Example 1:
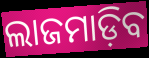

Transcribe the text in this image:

ଲାଜମାଡ଼ିବ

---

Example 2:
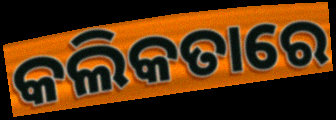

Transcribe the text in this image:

କଲିକତାରେ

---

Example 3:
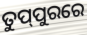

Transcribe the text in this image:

ତୁପ୍‌ପୁରରେ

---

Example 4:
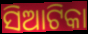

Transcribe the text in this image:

ସିଆଟିକା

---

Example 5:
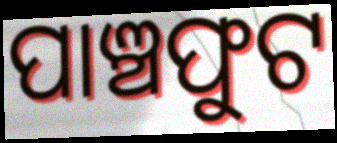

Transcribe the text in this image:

ପାଞ୍ଚଫୁଟ